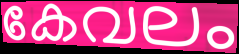
കേവലം